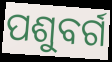
ପଶୁବର୍ଗ